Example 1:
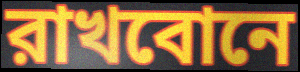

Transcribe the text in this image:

রাখবোনে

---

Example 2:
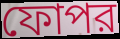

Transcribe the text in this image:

ফোপর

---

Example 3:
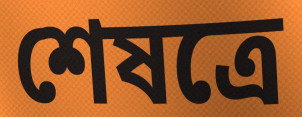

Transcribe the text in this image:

শেষত্রে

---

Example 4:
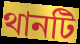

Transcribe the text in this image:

থানটি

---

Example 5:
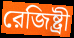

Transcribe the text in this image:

রেজিষ্ট্রী